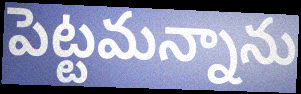
పెట్టమన్నాను